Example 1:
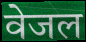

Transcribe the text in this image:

वेजल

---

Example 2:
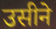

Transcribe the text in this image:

उसीने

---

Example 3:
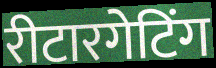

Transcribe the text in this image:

रीटारगेटिंग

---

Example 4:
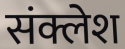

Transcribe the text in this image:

संक्लेश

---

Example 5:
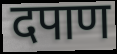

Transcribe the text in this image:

दपाण